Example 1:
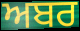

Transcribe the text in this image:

ਅਬਰ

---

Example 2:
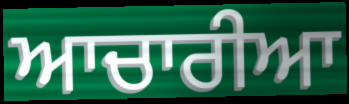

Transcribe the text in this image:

ਆਚਾਰੀਆ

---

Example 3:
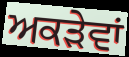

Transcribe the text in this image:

ਅਕੜੇਵਾਂ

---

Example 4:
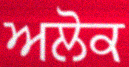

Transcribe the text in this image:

ਅਲੋਕ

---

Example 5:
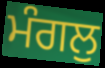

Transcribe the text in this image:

ਮੰਗਲੁ